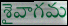
శైవాగమ